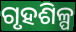
ଗୃହଶିଳ୍ପ